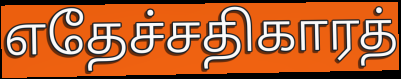
எதேச்சதிகாரத்